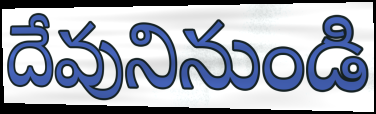
దేవునినుండి